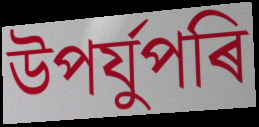
উপৰ্যুপৰি